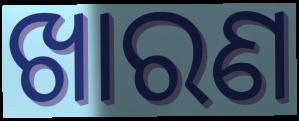
ଖାରଣ